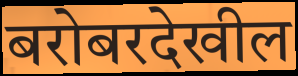
बरोबरदेखील